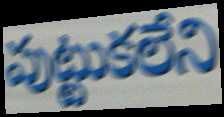
పుట్టుకలేని